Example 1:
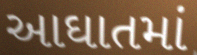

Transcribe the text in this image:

આઘાતમાં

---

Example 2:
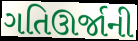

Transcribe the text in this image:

ગતિઊર્જાની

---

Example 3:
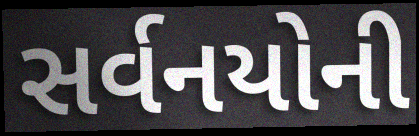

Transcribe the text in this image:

સર્વનયોની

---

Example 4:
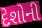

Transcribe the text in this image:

દેશોની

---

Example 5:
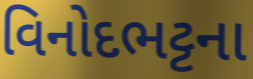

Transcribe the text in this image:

વિનોદભટ્ટના